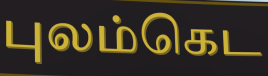
புலம்கெட